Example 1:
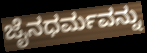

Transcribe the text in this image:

ಜೈನಧರ್ಮವನ್ನು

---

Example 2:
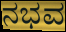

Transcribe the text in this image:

ನಭವ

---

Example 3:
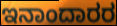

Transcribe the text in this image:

ಇನಾಂದಾರರ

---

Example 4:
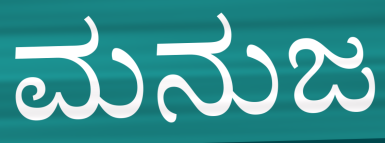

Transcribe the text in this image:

ಮನುಜ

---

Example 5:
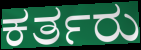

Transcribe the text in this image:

ಕರ್ತರು